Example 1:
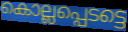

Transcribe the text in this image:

കൊല്ലപ്പെടട്ടെ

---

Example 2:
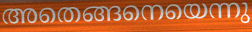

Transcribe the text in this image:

അതെങ്ങനെയെന്നു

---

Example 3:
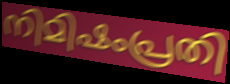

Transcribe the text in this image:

നിമിഷംപ്രതി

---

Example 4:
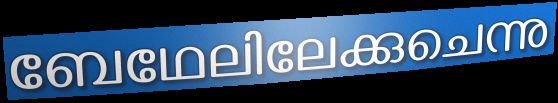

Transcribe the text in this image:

ബേഥേലിലേക്കുചെന്നു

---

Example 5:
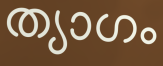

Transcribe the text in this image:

ത്യാഗം